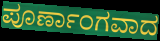
ಪೂರ್ಣಾಂಗವಾದ